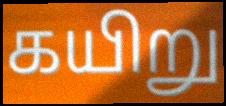
கயிறு